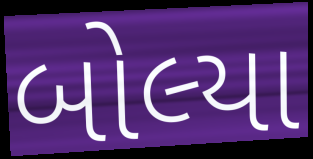
બોલ્યા